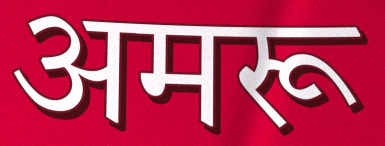
अमरू